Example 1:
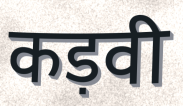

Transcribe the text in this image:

कड़वी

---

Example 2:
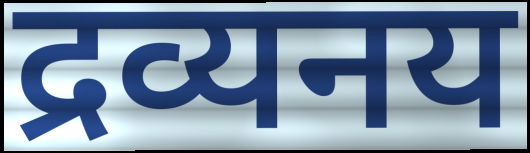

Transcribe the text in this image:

द्रव्यनय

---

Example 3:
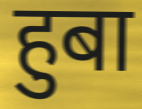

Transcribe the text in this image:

हुबा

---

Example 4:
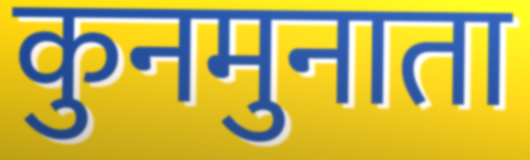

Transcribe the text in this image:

कुनमुनाता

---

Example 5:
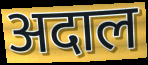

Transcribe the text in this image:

अदाल